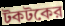
টকটকের